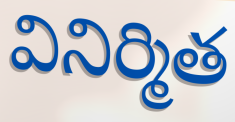
వినిర్మిత